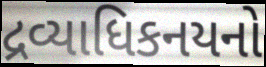
દ્રવ્યાધિકનયનો